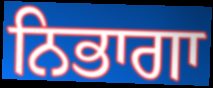
ਨਿਭਾਗਾ